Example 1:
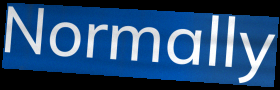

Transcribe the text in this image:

Normally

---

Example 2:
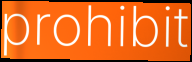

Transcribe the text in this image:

prohibit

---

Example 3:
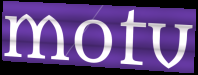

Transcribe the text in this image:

motu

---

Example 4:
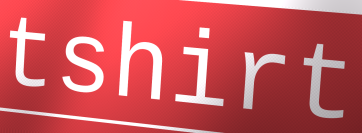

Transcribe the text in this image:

tshirt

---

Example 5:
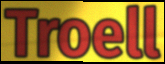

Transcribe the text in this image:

Troell